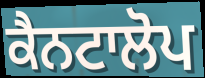
ਕੈਨਟਾਲੋਪ